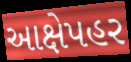
આક્ષેપહર